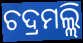
ଚଦ୍ରମଲ୍ଲି